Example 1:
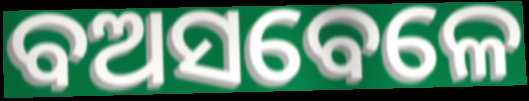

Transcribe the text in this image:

ବଅସବେଳେ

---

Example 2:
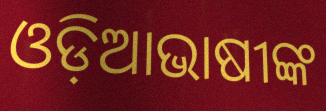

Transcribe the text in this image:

ଓଡ଼ିଆଭାଷୀଙ୍କ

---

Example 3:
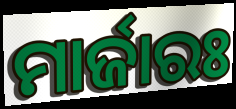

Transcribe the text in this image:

ମାର୍ଜାରଃ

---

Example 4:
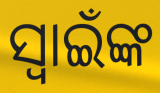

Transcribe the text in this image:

ସ୍ଵାଇଁଙ୍କ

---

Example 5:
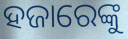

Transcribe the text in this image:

ହଜାରେଙ୍କୁ